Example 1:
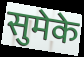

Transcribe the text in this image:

सुमेके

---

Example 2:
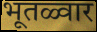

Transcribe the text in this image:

भूतळ्वार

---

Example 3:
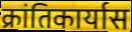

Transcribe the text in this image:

क्रांतिकार्यास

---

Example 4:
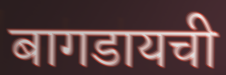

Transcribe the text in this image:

बागडायची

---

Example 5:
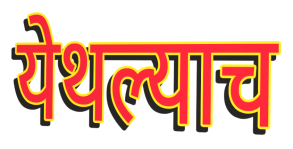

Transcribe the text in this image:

येथल्याच